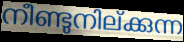
നീണ്ടുനില്ക്കുന്ന